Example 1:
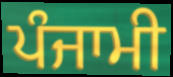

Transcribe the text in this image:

ਪੰਜਾਮੀ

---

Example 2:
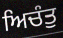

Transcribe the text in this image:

ਅਿਚੰਤੁ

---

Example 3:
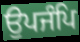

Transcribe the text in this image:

ਉਪਜੰਪਿ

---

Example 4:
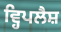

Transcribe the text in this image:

ਵ੍ਹਿਪਲੈਸ਼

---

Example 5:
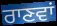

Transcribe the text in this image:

ਰਾਣਵਾਂ